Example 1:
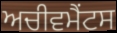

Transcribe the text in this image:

ਅਚੀਵਮੈਂਟਸ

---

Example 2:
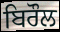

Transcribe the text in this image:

ਬਿਰੌਲ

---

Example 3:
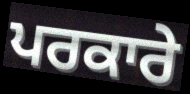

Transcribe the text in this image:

ਪਰਕਾਰੇ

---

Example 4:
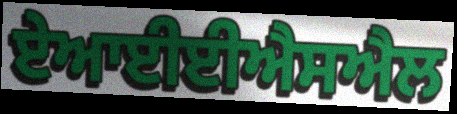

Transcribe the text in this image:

ਏਆਈਈਐਸਐਲ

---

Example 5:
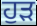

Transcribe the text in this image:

ਹੁੜ